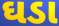
ઘડા